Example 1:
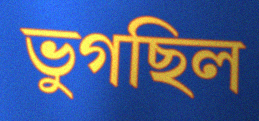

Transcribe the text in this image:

ভুগছিল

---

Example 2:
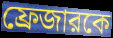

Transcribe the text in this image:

ফ্রেজারকে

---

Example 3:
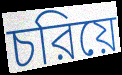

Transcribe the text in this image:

চরিয়ে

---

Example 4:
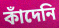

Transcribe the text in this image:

কাঁদেনি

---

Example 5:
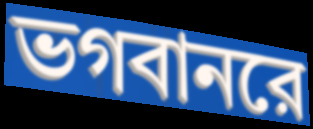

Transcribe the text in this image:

ভগবানরে